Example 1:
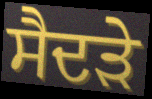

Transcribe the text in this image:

ਸੈਦੜੇ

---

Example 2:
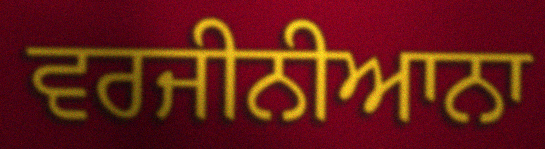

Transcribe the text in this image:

ਵਰਜੀਨੀਆਨਾ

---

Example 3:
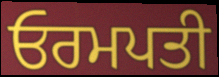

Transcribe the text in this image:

ਓਰਮਪਤੀ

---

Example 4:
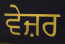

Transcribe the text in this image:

ਵੇਜ਼ਰ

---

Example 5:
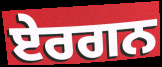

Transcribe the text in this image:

ਏਰਗਨ